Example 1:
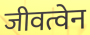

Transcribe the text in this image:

जीवत्वेन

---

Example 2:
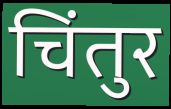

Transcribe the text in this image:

चिंतुर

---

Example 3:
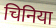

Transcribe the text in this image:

चिनिया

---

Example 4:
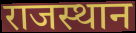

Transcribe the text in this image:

राजस्‍थान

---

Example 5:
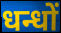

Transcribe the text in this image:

धन्धों